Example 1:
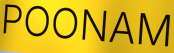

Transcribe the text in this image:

POONAM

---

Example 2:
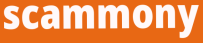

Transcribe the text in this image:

scammony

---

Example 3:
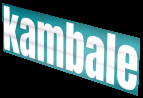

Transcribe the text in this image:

kambale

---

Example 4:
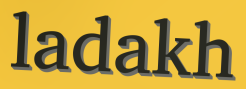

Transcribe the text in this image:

ladakh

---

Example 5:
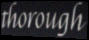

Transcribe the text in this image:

thorough